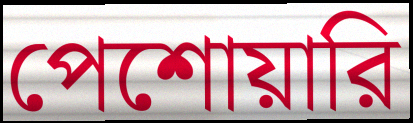
পেশোয়ারি